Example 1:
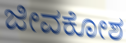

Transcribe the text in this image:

ಜೀವಕೋಶ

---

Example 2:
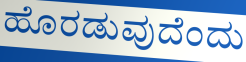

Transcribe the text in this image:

ಹೊರಡುವುದೆಂದು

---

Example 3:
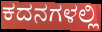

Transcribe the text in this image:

ಕದನಗಳಲ್ಲಿ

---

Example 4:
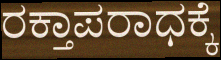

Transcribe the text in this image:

ರಕ್ತಾಪರಾಧಕ್ಕೆ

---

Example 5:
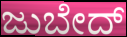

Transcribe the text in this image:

ಜುಬೇದ್